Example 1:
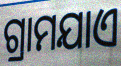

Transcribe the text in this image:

ଗ୍ରାମଯାଏ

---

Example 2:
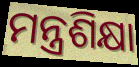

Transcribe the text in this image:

ମନ୍ତ୍ରଶିକ୍ଷା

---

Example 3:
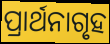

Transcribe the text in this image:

ପ୍ରାର୍ଥନାଗୃହ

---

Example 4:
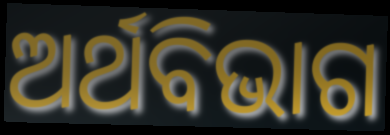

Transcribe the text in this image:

ଅର୍ଥବିଭାଗ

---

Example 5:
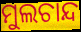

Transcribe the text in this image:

ମୁଲଚାନ୍ଦ